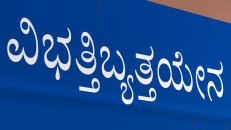
ವಿಭತ್ತಿಬ್ಯತ್ತಯೇನ